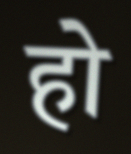
हो